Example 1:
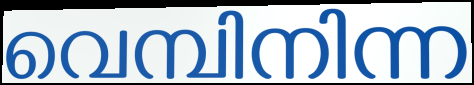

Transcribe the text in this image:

വെമ്പിനിന്ന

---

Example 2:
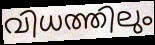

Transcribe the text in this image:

വിധത്തിലും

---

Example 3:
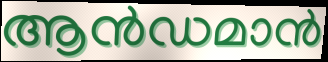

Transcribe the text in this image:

ആൻഡമാൻ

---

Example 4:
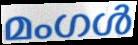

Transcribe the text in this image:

മംഗൾ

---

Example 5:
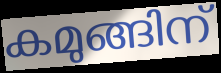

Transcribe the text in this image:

കമുങ്ങിന്